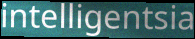
intelligentsia